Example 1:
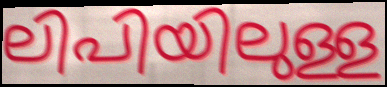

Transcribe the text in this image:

ലിപിയിലുള്ള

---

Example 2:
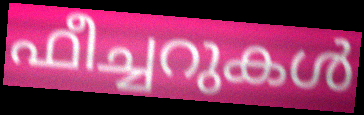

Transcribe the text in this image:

ഫീച്ചറുകൾ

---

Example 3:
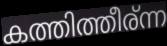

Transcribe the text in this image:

കത്തിത്തീര്ന്ന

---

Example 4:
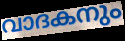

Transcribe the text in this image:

വാദകനും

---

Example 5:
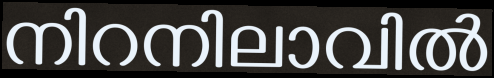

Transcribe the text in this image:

നിറനിലാവിൽ